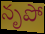
నృపో